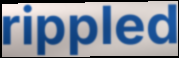
rippled